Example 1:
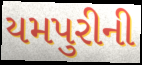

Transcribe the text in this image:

યમપુરીની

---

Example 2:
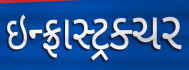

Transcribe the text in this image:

ઇન્ફ્રાસ્ટ્રક્ચર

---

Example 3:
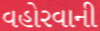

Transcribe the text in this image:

વહોરવાની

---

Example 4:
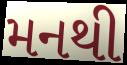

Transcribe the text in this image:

મનથી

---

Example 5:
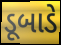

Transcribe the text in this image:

ડૂબાડે